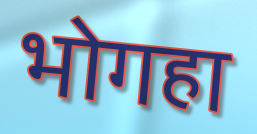
भोगहा